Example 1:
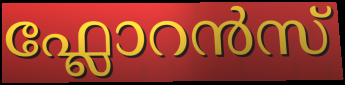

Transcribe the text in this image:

ഫ്ലോറൻസ്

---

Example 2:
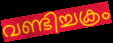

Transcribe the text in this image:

വണ്ടിച്ചക്രം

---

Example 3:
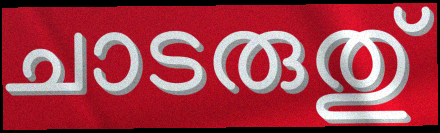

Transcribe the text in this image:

ചാടരുതു്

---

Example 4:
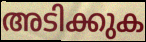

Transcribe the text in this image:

അടിക്കുക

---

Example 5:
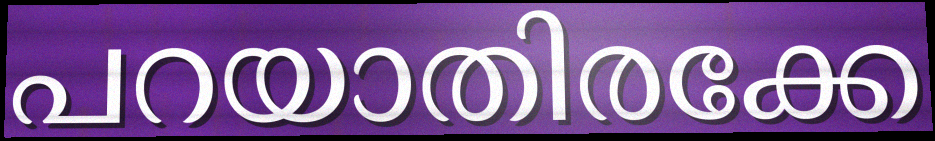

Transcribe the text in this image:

പറയാതിരക്കേ